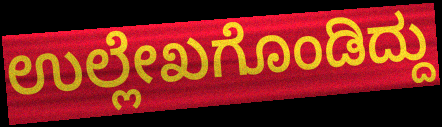
ಉಲ್ಲೇಖಗೊಂಡಿದ್ದು